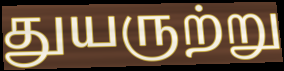
துயருற்று